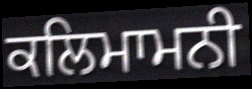
ਕਲਿਮਾਮਨੀ